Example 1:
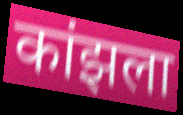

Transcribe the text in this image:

कांझला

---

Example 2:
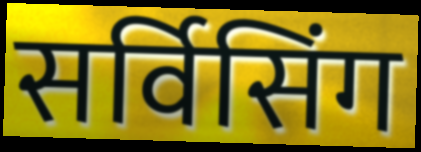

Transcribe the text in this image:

सर्विसिंग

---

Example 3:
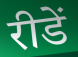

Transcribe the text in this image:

रीडें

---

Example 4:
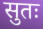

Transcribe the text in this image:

सुतः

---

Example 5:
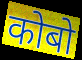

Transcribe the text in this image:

कोबो